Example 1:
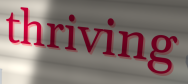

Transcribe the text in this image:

thriving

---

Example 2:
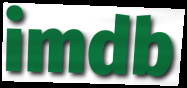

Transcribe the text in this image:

imdb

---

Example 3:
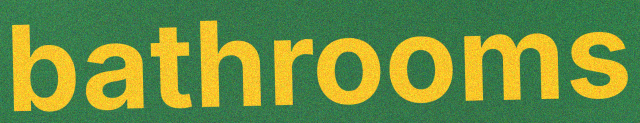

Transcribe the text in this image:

bathrooms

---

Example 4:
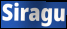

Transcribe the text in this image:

Siragu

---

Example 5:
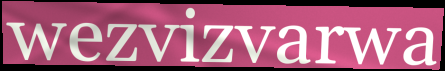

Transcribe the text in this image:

wezvizvarwa